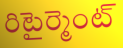
రిటైర్మెంట్